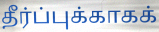
தீர்ப்புக்காகக்